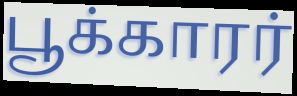
பூக்காரர்